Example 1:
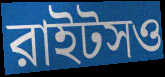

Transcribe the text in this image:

রাইটসও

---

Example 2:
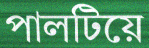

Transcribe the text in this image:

পালটিয়ে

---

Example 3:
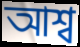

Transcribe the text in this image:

আশ্ব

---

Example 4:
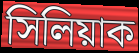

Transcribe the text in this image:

সিলিয়াক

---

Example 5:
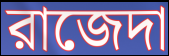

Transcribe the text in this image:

রাজেদা